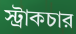
স্ট্রাকচার